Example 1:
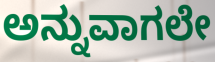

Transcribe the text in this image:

ಅನ್ನುವಾಗಲೇ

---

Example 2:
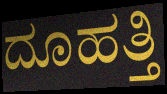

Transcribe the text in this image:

ದೂಹತ್ತಿ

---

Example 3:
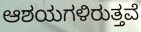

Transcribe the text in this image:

ಆಶಯಗಳಿರುತ್ತವೆ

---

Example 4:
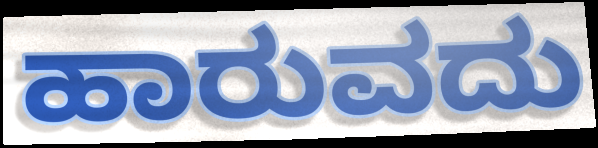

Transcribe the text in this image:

ಹಾರುವದು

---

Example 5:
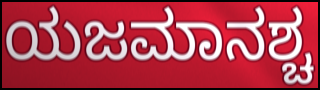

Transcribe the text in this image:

ಯಜಮಾನಶ್ಚ